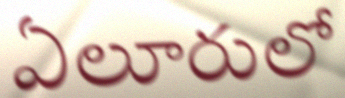
ఏలూరులో